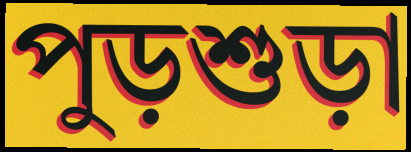
পুড়শুড়া